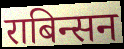
राबिन्सन